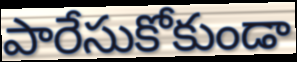
పారేసుకోకుండా